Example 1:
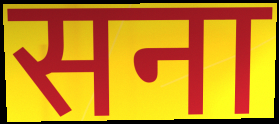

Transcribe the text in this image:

सना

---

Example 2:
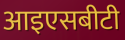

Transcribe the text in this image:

आइएसबीटी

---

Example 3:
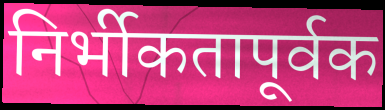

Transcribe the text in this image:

निर्भीकतापूर्वक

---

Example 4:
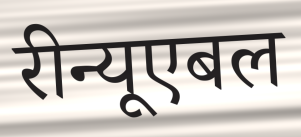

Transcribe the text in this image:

रीन्यूएबल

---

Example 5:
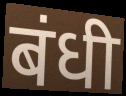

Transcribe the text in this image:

बंधी